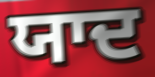
ਯਾਦ